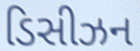
ડિસીઝન